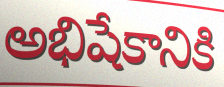
అభిషేకానికి